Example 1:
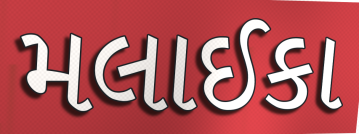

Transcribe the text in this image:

મલાઈકા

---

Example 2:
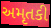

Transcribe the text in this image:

અમૃતકી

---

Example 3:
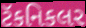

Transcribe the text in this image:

ટૅકનિકલર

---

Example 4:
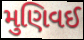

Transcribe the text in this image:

મુણિવઈ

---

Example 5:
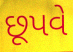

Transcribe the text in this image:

છૂપવે